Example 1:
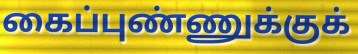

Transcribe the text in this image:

கைப்புண்ணுக்குக்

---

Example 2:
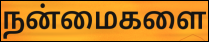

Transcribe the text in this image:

நன்மைகளை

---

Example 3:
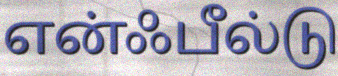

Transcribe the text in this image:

என்ஃபீல்டு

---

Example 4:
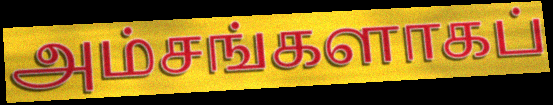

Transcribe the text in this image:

அம்சங்களாகப்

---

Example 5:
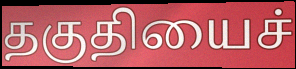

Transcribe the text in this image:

தகுதியைச்